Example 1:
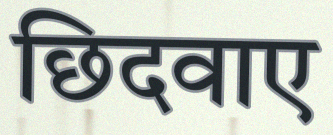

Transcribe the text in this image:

छिदवाए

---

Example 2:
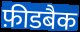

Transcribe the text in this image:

फ़ीडबैक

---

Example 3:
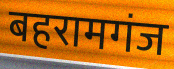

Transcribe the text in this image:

बहरामगंज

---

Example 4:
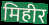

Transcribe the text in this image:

मिहीर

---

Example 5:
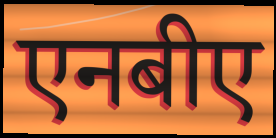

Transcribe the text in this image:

एनबीए